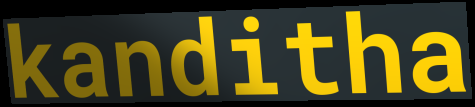
kanditha